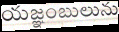
యజ్ఞంబులును